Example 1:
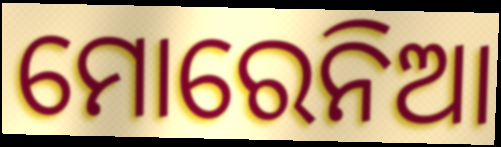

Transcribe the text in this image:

ମୋରେନିଆ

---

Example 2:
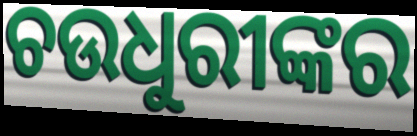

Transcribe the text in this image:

ଚଉଧୁରୀଙ୍କର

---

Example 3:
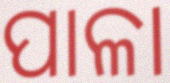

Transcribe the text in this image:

ପାଳା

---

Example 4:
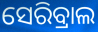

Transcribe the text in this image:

ସେରିବ୍ରାଲ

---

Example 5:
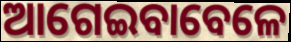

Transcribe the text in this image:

ଆଗେଇବାବେଳେ